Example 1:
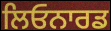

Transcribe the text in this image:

ਲਿਓਨਾਰਡ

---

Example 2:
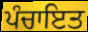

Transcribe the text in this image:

ਪੰਚਾਇਤ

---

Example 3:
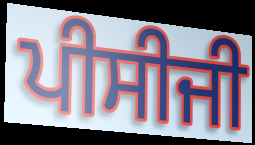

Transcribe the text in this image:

ਪੀਸੀਜੀ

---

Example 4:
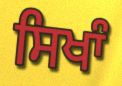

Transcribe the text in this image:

ਸਿਖਾੰ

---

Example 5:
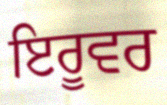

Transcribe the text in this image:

ਇਰੂਵਰ